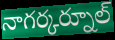
నాగర్కర్నూల్